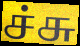
ச்சு